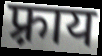
फ़्राय